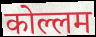
कोल्लम